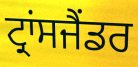
ਟ੍ਰਾਂਸਜੈਂਡਰ